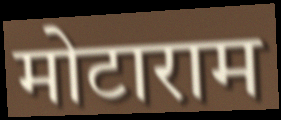
मोटाराम